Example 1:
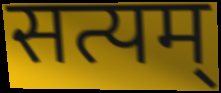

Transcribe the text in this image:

सत्यम्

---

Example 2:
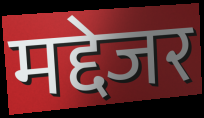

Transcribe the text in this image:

मद्देजर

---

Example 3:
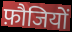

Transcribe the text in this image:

फ़ौजियों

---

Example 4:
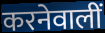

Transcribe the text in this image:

करनेवालीं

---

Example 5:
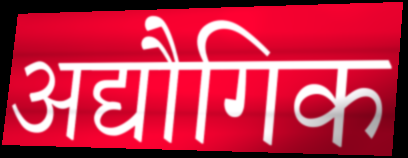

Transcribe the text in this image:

अद्यौगिक